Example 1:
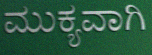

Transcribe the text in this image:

ಮುಕ್ಯವಾಗಿ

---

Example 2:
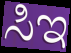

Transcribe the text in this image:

ಸಿಇ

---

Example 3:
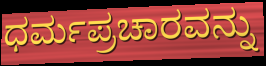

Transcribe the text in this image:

ಧರ್ಮಪ್ರಚಾರವನ್ನು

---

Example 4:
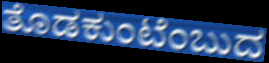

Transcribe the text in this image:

ತೊಡಕುಂಟೆಂಬುದ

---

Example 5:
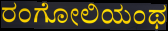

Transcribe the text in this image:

ರಂಗೋಲಿಯಂಥ